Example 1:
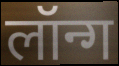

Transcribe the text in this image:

लॉन्ग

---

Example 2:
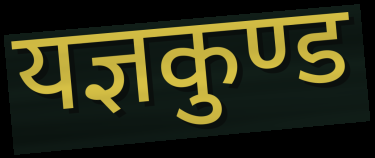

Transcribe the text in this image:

यज्ञकुण्ड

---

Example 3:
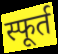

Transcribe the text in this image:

स्फूर्त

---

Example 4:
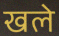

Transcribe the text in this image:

खले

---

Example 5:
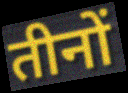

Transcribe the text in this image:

तीनों